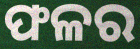
ଫଳର